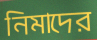
নিমাদের